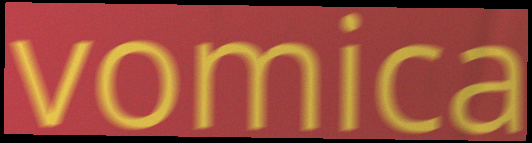
vomica